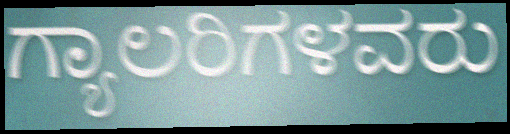
ಗ್ಯಾಲರಿಗಳವರು